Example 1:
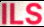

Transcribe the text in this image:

ILS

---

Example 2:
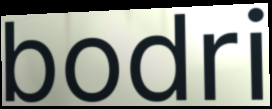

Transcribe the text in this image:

bodri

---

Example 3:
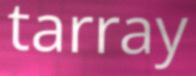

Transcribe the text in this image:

tarray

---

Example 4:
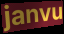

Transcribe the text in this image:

janvu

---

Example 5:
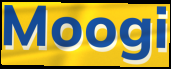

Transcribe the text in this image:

Moogi